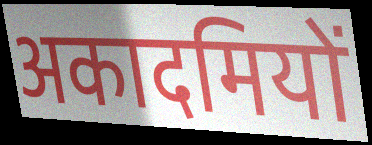
अकादमियों